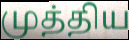
முத்திய